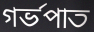
গর্ভপাত